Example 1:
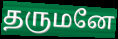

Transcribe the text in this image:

தருமனே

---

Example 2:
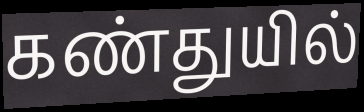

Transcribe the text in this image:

கண்துயில்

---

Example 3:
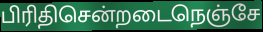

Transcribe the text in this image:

பிரிதிசென்றடைநெஞ்சே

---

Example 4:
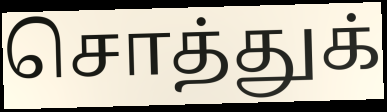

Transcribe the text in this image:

சொத்துக்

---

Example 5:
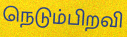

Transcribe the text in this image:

நெடும்பிறவி